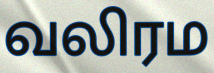
வலிரம